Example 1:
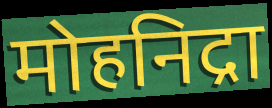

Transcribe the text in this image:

मोहनिद्रा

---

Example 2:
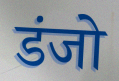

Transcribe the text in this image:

डंजो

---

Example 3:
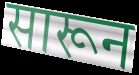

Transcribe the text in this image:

सारून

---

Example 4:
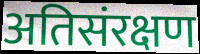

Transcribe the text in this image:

अतिसंरक्षण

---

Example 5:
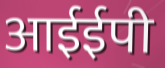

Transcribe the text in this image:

आईईपी